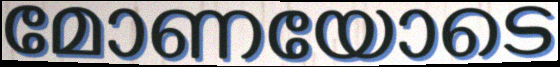
മോണയോടെ